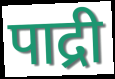
पाद्री